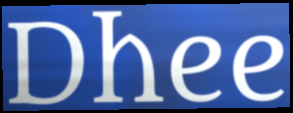
Dhee